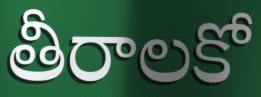
తీరాలకో